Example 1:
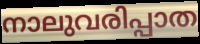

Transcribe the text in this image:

നാലുവരിപ്പാത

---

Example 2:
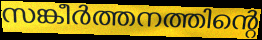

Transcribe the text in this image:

സങ്കീർത്തനത്തിന്റെ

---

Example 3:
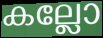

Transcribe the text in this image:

കല്ലോ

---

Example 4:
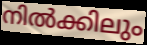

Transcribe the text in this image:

നിൽക്കിലും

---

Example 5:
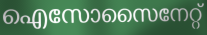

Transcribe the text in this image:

ഐസോസൈനേറ്റ്